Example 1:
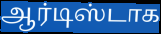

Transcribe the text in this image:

ஆர்டிஸ்டாக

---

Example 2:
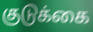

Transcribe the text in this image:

குடுக்கை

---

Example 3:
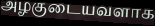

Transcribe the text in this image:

அழகுடையவளாக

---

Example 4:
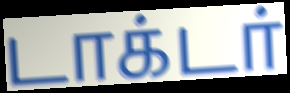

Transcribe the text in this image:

டாக்டர்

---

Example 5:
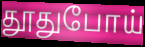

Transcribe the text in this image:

தூதுபோய்